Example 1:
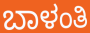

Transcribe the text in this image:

ಬಾಳಂತಿ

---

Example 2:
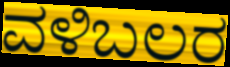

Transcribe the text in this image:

ವಳಿಬಲರ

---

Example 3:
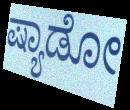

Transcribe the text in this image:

ಷ್ಯಾಡೋ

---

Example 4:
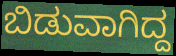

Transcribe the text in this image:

ಬಿಡುವಾಗಿದ್ದ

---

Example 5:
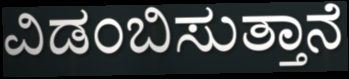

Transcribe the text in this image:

ವಿಡಂಬಿಸುತ್ತಾನೆ